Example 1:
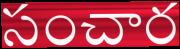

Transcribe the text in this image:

సంచార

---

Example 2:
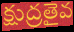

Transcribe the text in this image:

క్షుద్రతైవ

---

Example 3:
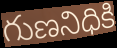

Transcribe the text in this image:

గుణనిధికి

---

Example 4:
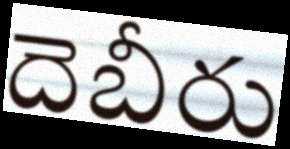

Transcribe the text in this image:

దెబీరు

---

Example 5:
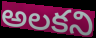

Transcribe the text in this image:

అలకని